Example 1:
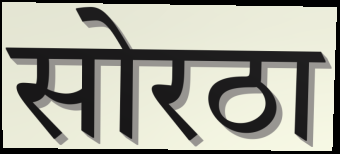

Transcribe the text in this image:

सोरठा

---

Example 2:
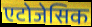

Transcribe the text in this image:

एटोजेसिक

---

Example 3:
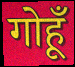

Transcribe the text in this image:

गोहूँ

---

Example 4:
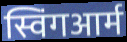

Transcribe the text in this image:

स्विंगआर्म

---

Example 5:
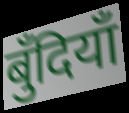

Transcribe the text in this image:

बुँदियाँ